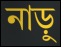
নাড়ু